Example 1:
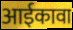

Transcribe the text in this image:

आईकावा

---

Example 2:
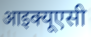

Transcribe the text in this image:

आइक्यूएसी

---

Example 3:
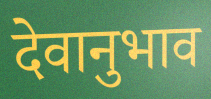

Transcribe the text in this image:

देवानुभाव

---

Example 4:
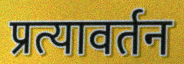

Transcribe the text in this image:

प्रत्यावर्तन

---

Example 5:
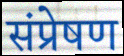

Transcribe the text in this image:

संप्रेषण